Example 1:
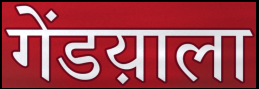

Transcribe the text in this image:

गेंडय़ाला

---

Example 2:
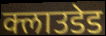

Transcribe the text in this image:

क्लाउडेड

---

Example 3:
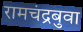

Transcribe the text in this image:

रामचंद्रबुवा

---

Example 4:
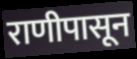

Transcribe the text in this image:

राणीपासून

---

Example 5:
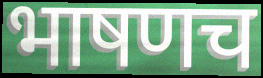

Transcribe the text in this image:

भाषणच